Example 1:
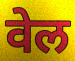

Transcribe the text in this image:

वेल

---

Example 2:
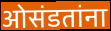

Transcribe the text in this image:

ओसंडतांना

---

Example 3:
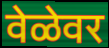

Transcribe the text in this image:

वेळेवर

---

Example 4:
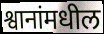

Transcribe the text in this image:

श्वानांमधील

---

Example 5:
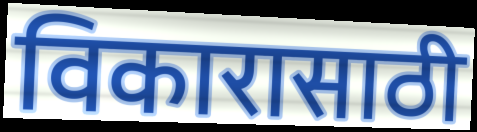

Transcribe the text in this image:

विकारासाठी